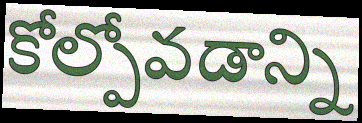
కోల్పోవడాన్ని